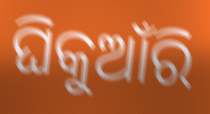
ଘିକୁଆଁରି